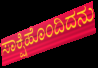
ಸಾಕ್ಷಿಹೊಂದಿದನು